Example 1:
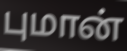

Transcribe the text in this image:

புமான்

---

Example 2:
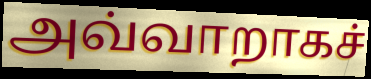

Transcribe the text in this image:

அவ்வாறாகச்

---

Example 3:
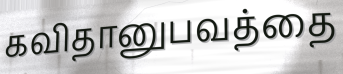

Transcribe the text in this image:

கவிதானுபவத்தை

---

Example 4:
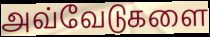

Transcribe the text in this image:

அவ்வேடுகளை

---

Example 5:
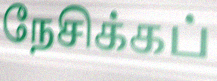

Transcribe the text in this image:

நேசிக்கப்